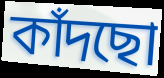
কাঁদছো